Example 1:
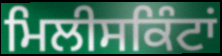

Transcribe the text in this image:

ਮਿਲੀਸਕਿੰਟਾਂ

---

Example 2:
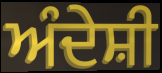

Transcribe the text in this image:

ਅੰਦੇਸ਼ੀ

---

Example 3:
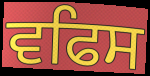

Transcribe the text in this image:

ਵਫਿਸ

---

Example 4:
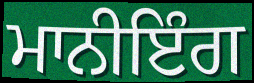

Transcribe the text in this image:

ਮਾਨੀਇੰਗ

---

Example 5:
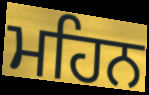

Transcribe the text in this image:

ਮਹਿਨ